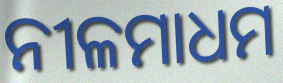
ନୀଳମାଧମ